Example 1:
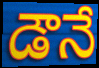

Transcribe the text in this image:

డౌనే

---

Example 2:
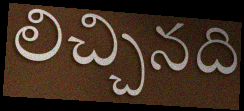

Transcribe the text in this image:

లిచ్చినది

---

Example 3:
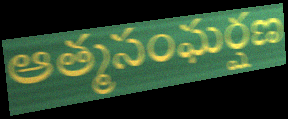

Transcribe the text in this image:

ఆత్మసంఘర్షణ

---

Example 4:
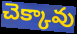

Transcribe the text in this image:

చెక్కావు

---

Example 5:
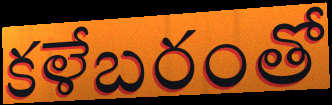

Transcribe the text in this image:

కళేబరంతో